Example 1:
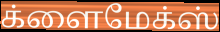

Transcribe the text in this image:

க்ளைமேக்ஸ்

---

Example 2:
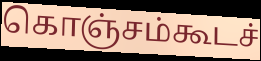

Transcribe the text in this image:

கொஞ்சம்கூடச்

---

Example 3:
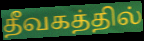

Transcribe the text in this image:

தீவகத்தில்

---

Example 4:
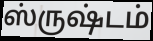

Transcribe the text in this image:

ஸ்ருஷ்டம்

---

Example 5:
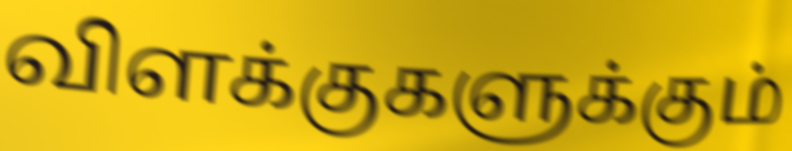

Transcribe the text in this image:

விளக்குகளுக்கும்